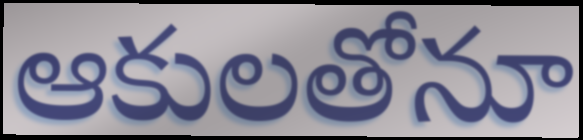
ఆకులతోనూ